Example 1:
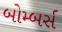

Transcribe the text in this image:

બોમ્બર્સ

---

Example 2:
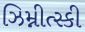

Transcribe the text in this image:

ઝિમ્નીત્સ્કી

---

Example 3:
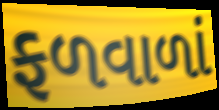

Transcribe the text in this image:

ફળવાળાં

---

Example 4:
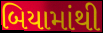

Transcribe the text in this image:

બિયામાંથી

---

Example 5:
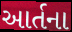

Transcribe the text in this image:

આર્તના